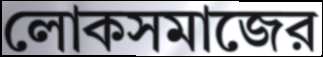
লোকসমাজের